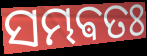
ସମ୍ଭଵତଃ